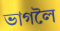
ভাগলৈ